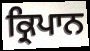
ਕ੍ਰਿਪਾਨ